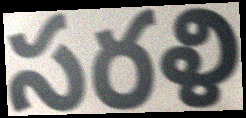
సరళి